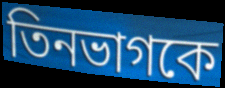
তিনভাগকে